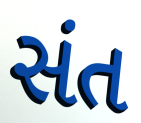
સંત